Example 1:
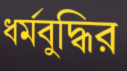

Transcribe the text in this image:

ধর্মবুদ্ধির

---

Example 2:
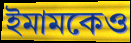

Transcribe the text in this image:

ইমামকেও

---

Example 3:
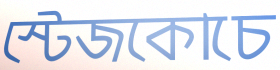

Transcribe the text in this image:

স্টেজকোচে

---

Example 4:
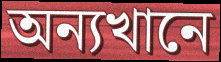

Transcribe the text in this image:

অন্যখানে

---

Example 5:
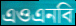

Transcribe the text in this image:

এওএনবি